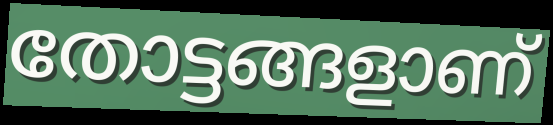
തോട്ടങ്ങളാണ്